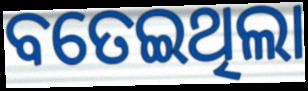
ବତେଇଥିଲା